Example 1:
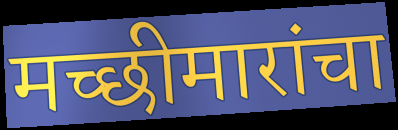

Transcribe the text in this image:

मच्छीमारांचा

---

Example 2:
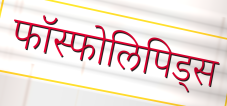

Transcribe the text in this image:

फॉस्फोलिपिड्स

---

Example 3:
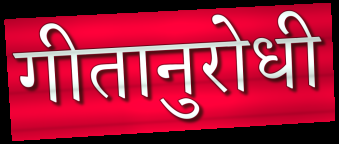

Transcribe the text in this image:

गीतानुरोधी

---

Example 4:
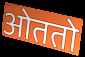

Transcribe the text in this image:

ओततो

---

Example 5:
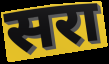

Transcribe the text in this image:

सरा